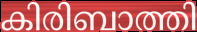
കിരിബാത്തി